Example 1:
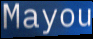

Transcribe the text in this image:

Mayou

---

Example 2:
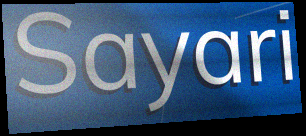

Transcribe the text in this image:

Sayari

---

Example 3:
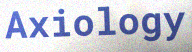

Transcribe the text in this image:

Axiology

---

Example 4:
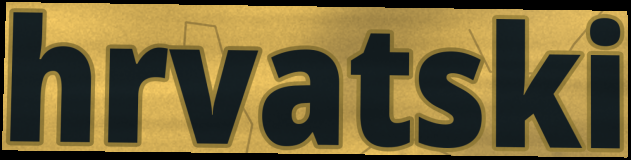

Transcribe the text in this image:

hrvatski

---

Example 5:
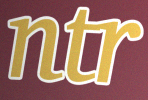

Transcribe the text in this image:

ntr